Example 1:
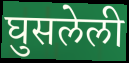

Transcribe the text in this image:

घुसलेली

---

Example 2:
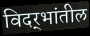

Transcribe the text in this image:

विदर्भांतील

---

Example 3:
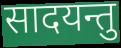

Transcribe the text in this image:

सादयन्तु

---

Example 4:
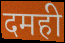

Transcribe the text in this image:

दमही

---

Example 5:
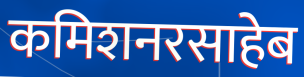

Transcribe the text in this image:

कमिशनरसाहेब